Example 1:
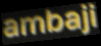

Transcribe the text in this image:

ambaji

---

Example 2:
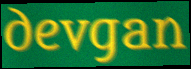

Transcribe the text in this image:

devgan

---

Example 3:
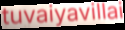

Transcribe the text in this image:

tuvaiyavillai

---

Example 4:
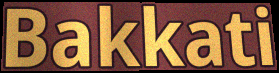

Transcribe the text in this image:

Bakkati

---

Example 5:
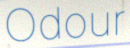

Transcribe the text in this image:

Odour